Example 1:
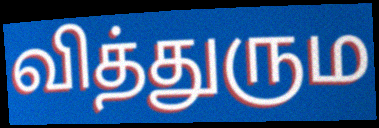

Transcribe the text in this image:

வித்துரும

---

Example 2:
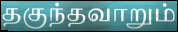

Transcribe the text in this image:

தகுந்தவாறும்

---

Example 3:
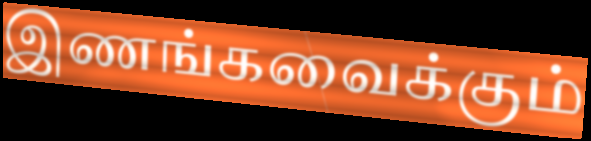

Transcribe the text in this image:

இணங்கவைக்கும்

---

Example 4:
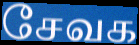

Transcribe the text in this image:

சேவக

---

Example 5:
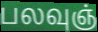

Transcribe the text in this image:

பலவுஞ்